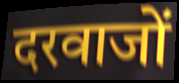
दरवाजों